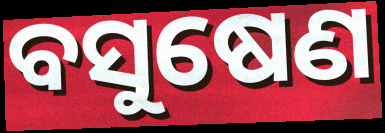
ବସୁଷେଣ